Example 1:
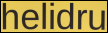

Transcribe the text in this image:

helidru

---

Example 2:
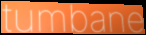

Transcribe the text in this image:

tumbane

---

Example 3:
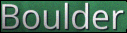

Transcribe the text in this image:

Boulder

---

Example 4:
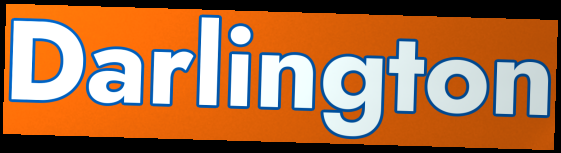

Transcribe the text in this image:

Darlington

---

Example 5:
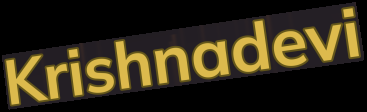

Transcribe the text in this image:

Krishnadevi